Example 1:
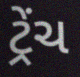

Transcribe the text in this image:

ટ્રેંચ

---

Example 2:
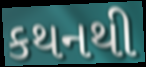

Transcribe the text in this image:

કથનથી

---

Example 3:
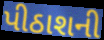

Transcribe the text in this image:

પીઠાશની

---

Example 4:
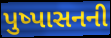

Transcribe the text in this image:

પુષ્પાસનની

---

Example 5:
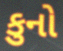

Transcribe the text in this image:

કુનો